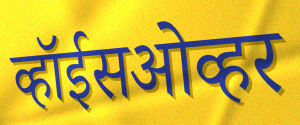
व्हॉईसओव्हर